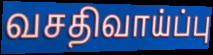
வசதிவாய்ப்பு